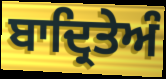
ਬਾਦ੍ਰਿਤੇਅੰ